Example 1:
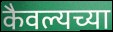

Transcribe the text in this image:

कैवल्यच्या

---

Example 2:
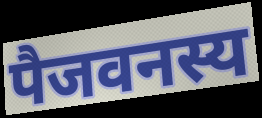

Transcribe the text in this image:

पैजवनस्य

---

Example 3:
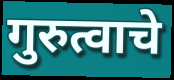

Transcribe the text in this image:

गुरुत्वाचे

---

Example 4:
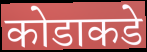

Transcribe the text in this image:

कोडाकडे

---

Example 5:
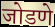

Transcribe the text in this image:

जोडणे